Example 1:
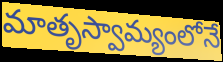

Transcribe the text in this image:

మాతృస్వామ్యంలోనే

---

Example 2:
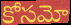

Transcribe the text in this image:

కోసమో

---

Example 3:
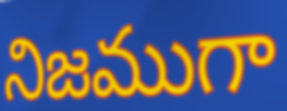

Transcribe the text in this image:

నిజముగా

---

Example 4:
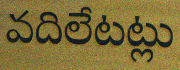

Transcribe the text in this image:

వదిలేటట్లు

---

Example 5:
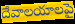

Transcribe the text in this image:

దేవాలయాలపై